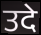
उदे